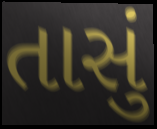
તાસું